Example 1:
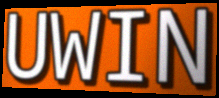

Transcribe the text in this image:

UWIN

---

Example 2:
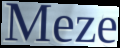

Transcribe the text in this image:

Meze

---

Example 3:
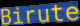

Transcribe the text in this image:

Birute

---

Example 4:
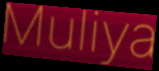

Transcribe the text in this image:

Muliya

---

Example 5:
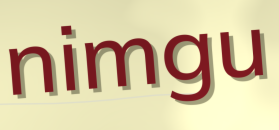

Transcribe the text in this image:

nimgu